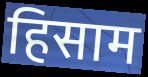
हिसाम